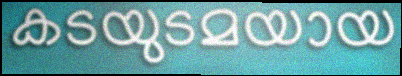
കടയുടമയായ